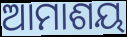
ଆମାଶୟ